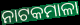
ନାଟକମାଳା